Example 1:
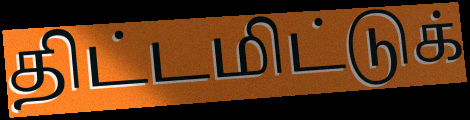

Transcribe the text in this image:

திட்டமிட்டுக்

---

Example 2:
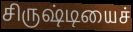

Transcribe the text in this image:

சிருஷ்டியைச்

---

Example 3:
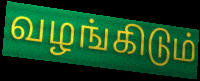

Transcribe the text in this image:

வழங்கிடும்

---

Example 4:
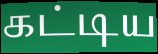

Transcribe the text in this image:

கட்டிய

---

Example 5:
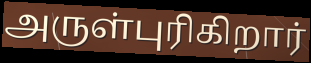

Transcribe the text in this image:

அருள்புரிகிறார்